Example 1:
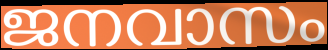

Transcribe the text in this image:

ജനവാസം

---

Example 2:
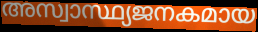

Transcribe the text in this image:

അസ്വാസ്ഥ്യജനകമായ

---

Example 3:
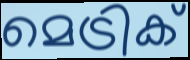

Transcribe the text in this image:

മെട്രിക്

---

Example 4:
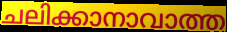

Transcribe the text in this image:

ചലിക്കാനാവാത്ത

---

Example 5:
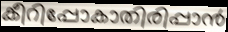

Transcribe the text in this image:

കീറിപ്പോകാതിരിപ്പാൻ